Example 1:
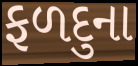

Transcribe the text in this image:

ફળદુના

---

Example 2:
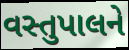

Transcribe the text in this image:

વસ્તુપાલને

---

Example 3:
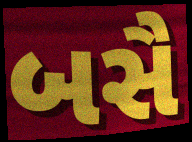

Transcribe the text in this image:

બસૈ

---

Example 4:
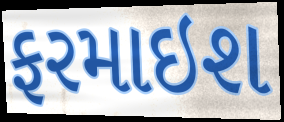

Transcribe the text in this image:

ફરમાઇશ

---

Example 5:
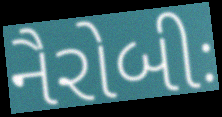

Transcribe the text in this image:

નૈરોબીઃ